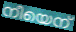
നീയെന്